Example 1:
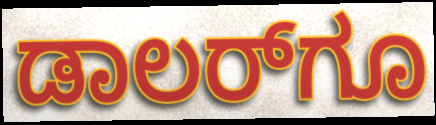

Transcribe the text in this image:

ಡಾಲರ್‌ಗೂ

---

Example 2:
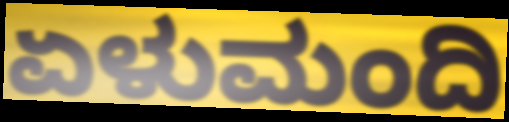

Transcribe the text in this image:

ಏಳುಮಂದಿ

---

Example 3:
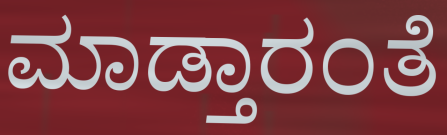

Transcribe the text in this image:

ಮಾಡ್ತಾರಂತೆ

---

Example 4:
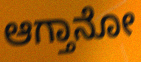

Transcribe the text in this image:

ಆಗ್ತಾನೋ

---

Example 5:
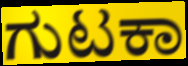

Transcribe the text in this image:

ಗುಟಕಾ